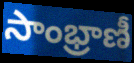
సాంభ్రాణీ